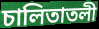
চালিতাতলী